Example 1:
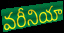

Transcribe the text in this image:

వరీనియా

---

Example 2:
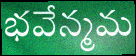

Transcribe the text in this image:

భవేన్మమ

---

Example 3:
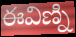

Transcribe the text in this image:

ఈవిణ్ని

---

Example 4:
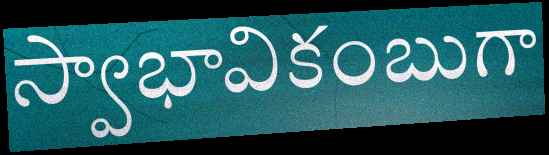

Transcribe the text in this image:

స్వాభావికంబుగా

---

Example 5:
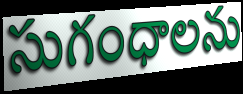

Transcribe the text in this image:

సుగంధాలను